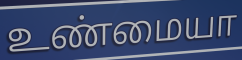
உண்மையா